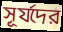
সূর্যদের